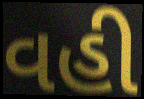
વહી